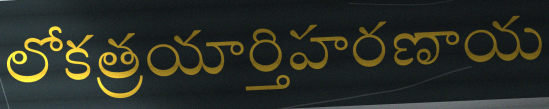
లోకత్రయార్తిహరణాయ